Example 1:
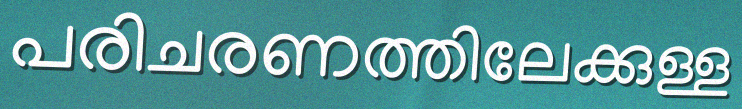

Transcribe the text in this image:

പരിചരണത്തിലേക്കുള്ള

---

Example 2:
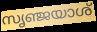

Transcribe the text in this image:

സൃഞ്ജയാശ്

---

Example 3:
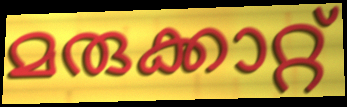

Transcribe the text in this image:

മരുക്കാറ്റ്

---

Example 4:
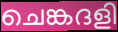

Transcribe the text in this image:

ചെങ്കദളി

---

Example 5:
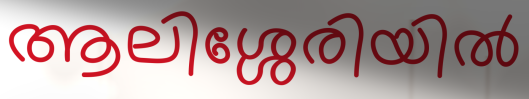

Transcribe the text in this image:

ആലിശ്ശേരിയിൽ